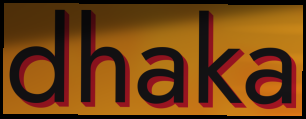
dhaka